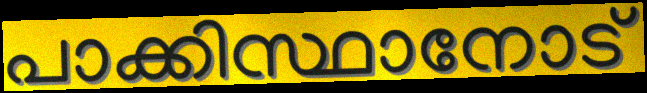
പാക്കിസ്ഥാനോട്